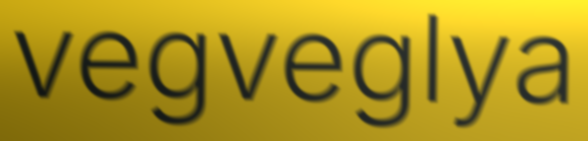
vegveglya